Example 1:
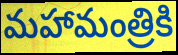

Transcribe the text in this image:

మహామంత్రికి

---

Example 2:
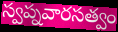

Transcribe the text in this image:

స్వప్నవారసత్వం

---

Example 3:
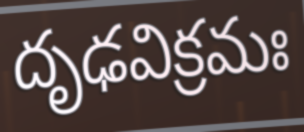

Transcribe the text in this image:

దృఢవిక్రమః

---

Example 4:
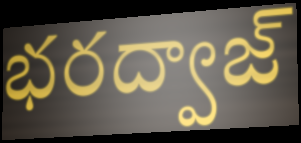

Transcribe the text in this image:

భరద్వాజ్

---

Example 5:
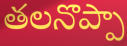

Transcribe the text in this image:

తలనొప్పా